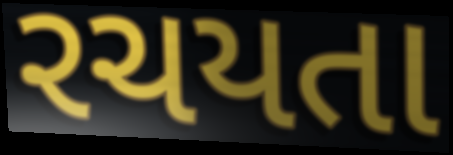
રચયતા